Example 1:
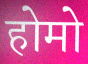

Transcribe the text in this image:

होमो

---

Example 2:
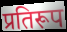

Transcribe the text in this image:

प्रतिरूप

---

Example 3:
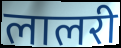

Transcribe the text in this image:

लालरी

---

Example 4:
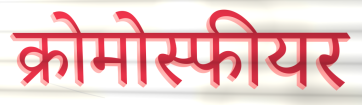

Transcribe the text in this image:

क्रोमोस्फीयर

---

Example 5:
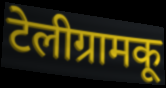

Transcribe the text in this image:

टेलीग्रामकू